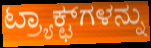
ಟ್ರ್ಯಾಕ್ಟ್‌ಗಳನ್ನು